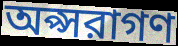
অপ্সরাগণ